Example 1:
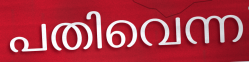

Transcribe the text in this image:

പതിവെന്ന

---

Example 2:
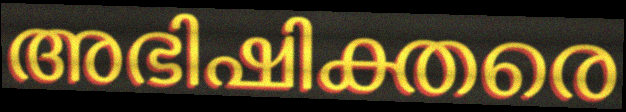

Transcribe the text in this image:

അഭിഷിക്തരെ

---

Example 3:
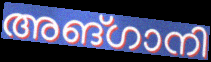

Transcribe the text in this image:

അങ്ഗാനി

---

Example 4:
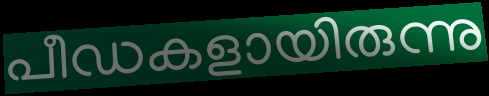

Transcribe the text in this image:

പീഡകളായിരുന്നു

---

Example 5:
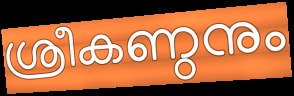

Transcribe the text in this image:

ശ്രീകണ്ഠനും